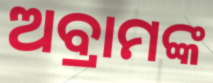
ଅବ୍ରାମଙ୍କ